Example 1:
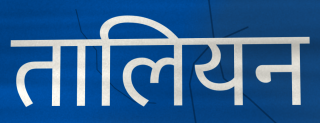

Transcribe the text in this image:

तालियन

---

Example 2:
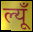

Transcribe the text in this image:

ल्यूँ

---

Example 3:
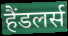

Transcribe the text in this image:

हैंडलर्स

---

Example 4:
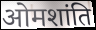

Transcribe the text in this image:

ओमशांति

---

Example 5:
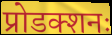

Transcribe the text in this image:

प्रोडक्शनः